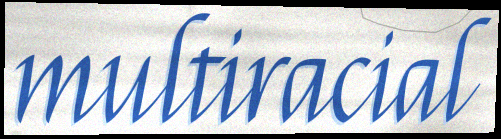
multiracial